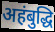
अहंबुद्धि